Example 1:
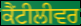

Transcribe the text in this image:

ਕੈਂਟੀਲੀਵਰ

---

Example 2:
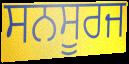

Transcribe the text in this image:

ਸਨਸੂਰਜ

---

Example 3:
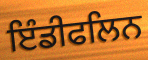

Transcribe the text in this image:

ਇੰਡੀਫਲਿਨ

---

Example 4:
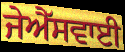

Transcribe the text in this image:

ਜੇਐੱਸਵਾਈ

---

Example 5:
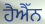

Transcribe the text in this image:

ਹੈਐੱਨ